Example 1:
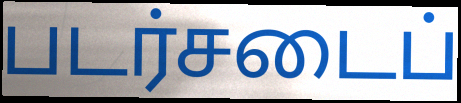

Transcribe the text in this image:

படர்சடைப்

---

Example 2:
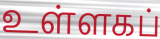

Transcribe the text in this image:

உள்ளகப்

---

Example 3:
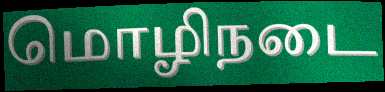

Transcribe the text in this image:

மொழிநடை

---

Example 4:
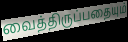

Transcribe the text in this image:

வைத்திருப்பதையும்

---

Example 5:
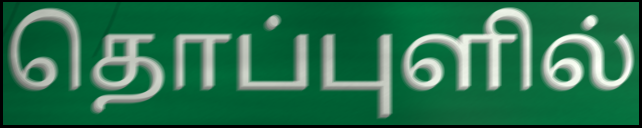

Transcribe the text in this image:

தொப்புளில்